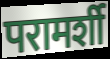
परामर्शी